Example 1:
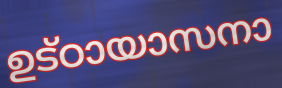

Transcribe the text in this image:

ഉട്ഠായാസനാ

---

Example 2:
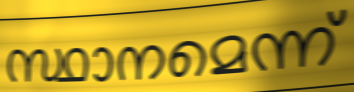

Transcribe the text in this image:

സ്ഥാനമെന്ന്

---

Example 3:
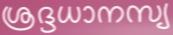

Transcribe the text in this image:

ശ്രദ്ദധാനസ്യ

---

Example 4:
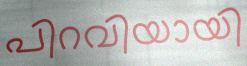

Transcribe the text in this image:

പിറവിയായി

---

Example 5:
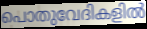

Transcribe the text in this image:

പൊതുവേദികളിൽ